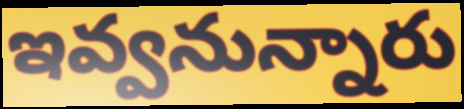
ఇవ్వనున్నారు